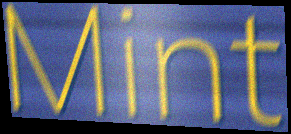
Mint